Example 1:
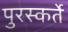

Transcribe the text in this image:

पुरस्कर्ते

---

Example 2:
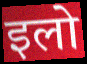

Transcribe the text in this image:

इलो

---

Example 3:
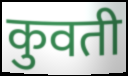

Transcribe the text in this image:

कुवती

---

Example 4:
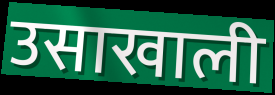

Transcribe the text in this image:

उसाखाली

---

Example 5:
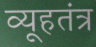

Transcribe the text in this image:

व्यूहतंत्र